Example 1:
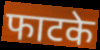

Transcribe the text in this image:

फाटके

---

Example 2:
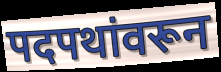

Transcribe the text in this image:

पदपथांवरून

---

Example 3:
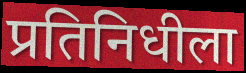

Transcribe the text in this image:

प्रतिनिधीला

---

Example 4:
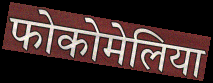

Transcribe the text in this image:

फोकोमेलिया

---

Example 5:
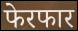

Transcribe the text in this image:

फेरफार